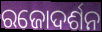
ରଜୋଦର୍ଶନ